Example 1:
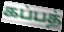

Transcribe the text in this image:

கப்பத்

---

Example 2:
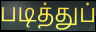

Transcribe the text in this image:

படித்துப்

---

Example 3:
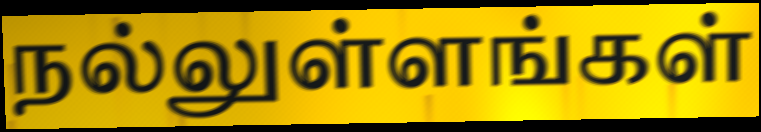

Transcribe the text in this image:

நல்லுள்ளங்கள்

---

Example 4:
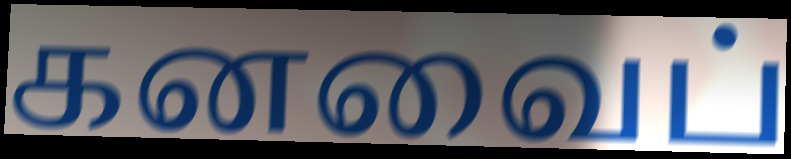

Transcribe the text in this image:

கனவைப்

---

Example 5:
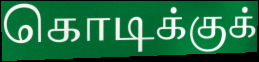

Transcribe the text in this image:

கொடிக்குக்